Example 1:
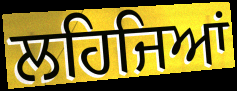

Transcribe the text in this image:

ਲਹਿਜਿਆਂ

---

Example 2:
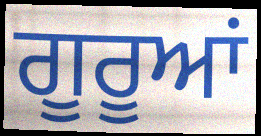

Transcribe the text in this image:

ਗੂਰੂਆਂ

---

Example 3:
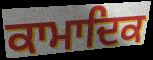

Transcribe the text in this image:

ਕਾਮਾਦਿਕ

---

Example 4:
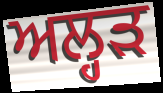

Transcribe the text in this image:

ਅਲ੍ਹੜ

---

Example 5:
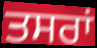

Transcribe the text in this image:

ਤਸਰਾਂ